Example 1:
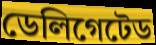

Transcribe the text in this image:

ডেলিগেটেড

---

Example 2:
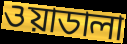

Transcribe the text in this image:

ওয়াডালা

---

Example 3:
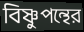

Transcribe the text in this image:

বিষ্ণুপন্থের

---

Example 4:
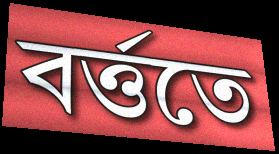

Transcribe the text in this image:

বর্ত্ততে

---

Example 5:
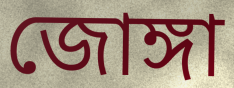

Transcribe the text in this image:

জোঙ্গা